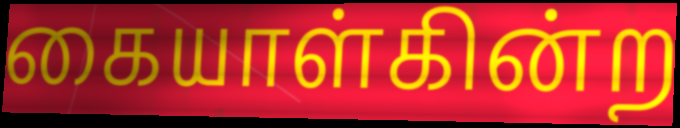
கையாள்கின்ற